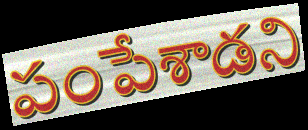
పంపేశాడని